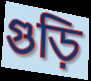
গুড়ি